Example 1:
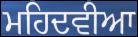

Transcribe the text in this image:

ਮਹਿਦਵੀਆ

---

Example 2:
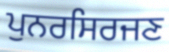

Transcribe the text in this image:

ਪੁਨਰਸਿਰਜਣ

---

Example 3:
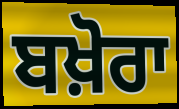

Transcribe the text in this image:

ਬਖ਼ੋਰਾ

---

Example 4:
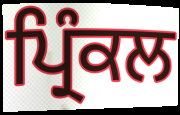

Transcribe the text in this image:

ਪ੍ਰਿੰਕਲ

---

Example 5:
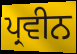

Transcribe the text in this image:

ਪ੍ਰਵੀਨ